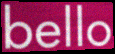
bello